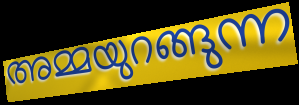
അമ്മയുറങ്ങുന്ന